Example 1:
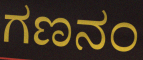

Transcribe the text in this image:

ಗಣನಂ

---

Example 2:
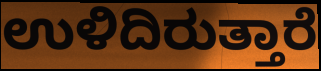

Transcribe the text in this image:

ಉಳಿದಿರುತ್ತಾರೆ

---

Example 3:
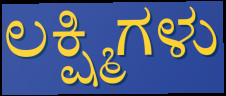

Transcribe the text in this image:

ಲಕ್ಷ್ಮಿಗಳು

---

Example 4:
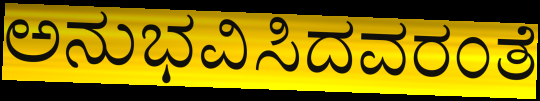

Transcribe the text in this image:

ಅನುಭವಿಸಿದವರಂತೆ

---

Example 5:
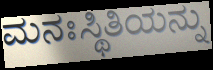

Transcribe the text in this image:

ಮನಃಸ್ಥಿತಿಯನ್ನು